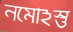
নমোঽস্তু